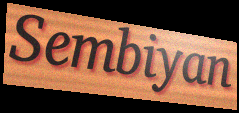
Sembiyan